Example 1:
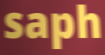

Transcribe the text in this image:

saph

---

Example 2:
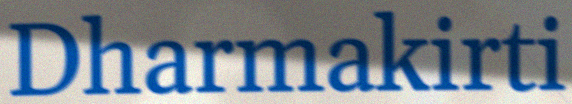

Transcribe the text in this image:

Dharmakirti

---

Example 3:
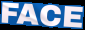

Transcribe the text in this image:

FACE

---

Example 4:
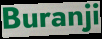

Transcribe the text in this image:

Buranji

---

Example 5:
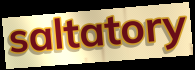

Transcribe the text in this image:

saltatory